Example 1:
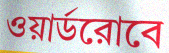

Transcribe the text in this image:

ওয়ার্ডরোবে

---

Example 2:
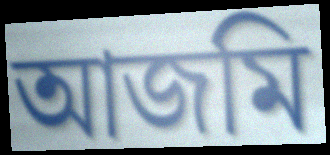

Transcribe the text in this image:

আজমি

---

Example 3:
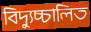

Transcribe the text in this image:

বিদ্যুচ্চালিত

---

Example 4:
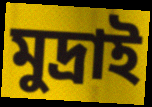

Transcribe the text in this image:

মুদ্রাই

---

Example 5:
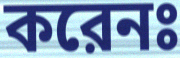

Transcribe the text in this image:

করেনঃ